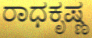
ರಾಧಕೃಷ್ಣ